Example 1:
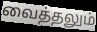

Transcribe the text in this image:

வைத்தலும்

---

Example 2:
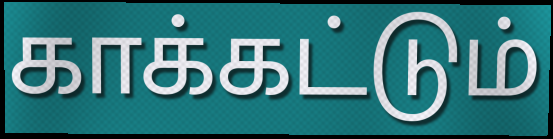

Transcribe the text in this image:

காக்கட்டும்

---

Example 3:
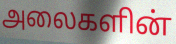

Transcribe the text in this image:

அலைகளின்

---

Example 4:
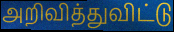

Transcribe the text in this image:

அறிவித்துவிட்டு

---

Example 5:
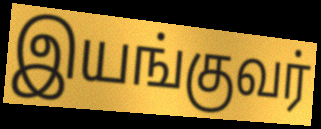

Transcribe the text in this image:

இயங்குவர்